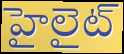
హైలైట్